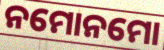
ନମୋନମୋ